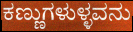
ಕಣ್ಣುಗಳುಳ್ಳವನು